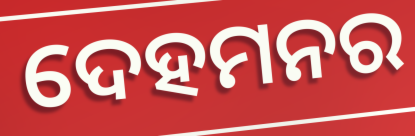
ଦେହମନର